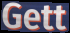
Gett